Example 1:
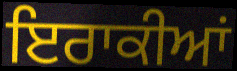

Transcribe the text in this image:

ਇਰਾਕੀਆਂ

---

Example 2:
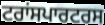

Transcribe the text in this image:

ਟਰਾਂਸਪਾਰਟਰਸ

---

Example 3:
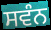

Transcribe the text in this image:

ਸਵੰਨ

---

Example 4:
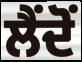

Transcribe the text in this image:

ਲੈਂਦੋਂ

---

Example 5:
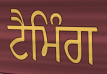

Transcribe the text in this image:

ਟੈਮਿੰਗ